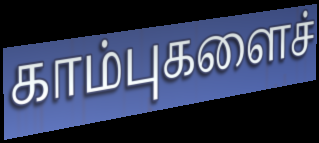
காம்புகளைச்